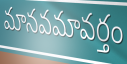
మానవమావర్తం